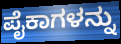
ಪೈಕಾಗಳನ್ನು